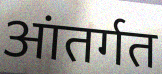
आंतर्गत